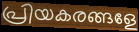
പ്രിയകരങ്ങളേ